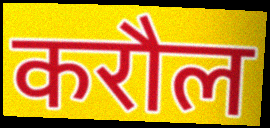
करौल